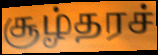
சூழ்தரச்